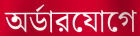
অর্ডারযোগে